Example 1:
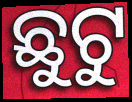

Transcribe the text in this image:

ଛୁଟୁ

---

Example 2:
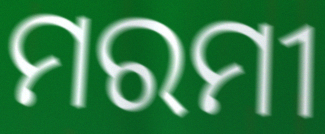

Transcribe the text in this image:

ମରମୀ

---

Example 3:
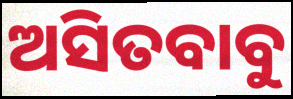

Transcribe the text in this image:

ଅସିତବାବୁ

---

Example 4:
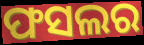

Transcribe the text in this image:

ଫସଲର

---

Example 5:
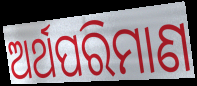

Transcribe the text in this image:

ଅର୍ଥପରିମାଣ